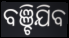
ବଞ୍ଚିଯିବ